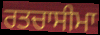
ਰਤਚਾਸੀਮਾ